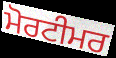
ਮੋਰਟੀਮਰ